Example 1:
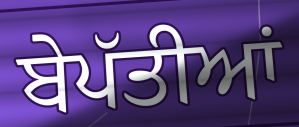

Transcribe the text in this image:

ਬੇਪੱਤੀਆਂ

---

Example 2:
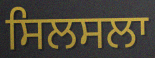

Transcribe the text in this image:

ਸਿਲਸਲਾ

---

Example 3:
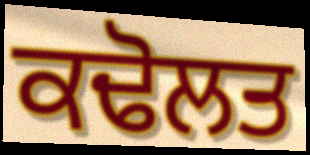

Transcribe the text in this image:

ਕਢੋਲਤ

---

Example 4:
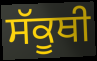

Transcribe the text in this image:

ਸੱਕੂਥੀ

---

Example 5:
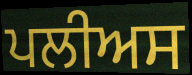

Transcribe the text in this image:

ਪਲੀਅਸ